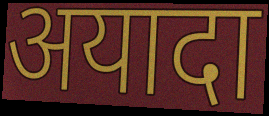
अयादा